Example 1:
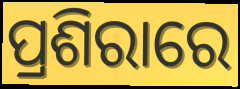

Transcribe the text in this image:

ପ୍ରଶିରାରେ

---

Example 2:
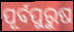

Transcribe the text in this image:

ପୂର୍ବପୁରୁଷ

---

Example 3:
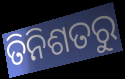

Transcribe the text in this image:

ତିନିଶତରୁ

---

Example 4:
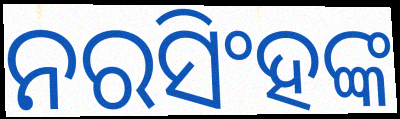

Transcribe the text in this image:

ନରସିଂହଙ୍କ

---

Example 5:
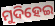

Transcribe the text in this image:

ମୁଦିହେଇ